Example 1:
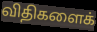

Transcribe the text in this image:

விதிகளைக்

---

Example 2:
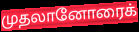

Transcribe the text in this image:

முதலானோரைக்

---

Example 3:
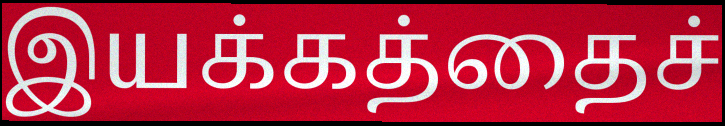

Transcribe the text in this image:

இயக்கத்தைச்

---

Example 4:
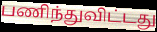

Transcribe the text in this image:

பணிந்துவிட்டது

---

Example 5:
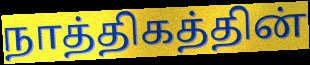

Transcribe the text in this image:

நாத்திகத்தின்